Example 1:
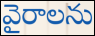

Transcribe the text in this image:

వైరాలను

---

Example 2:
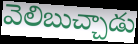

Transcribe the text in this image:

వెలిబుచ్చాడు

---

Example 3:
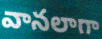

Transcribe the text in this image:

వానలాగా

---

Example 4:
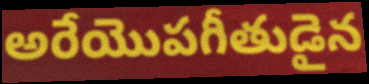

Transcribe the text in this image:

అరేయొపగీతుడైన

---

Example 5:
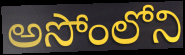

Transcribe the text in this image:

అసోంలోని